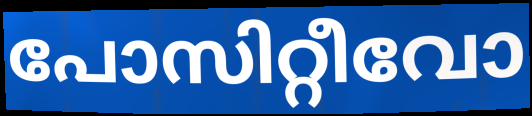
പോസിറ്റീവോ